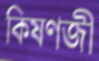
কিষণজী